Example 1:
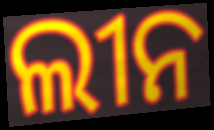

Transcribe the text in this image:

ଲୀନ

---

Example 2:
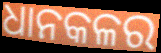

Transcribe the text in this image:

ଧାନକଳର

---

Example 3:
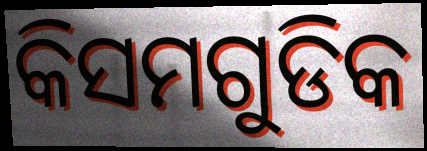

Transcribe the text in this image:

କିସମଗୁଡିକ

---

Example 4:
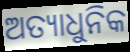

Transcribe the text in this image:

ଅତ୍ୟାଧୁନିକ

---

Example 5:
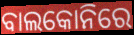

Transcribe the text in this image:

ବାଲକୋନିରେ